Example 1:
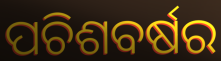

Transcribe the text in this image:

ପଚିଶବର୍ଷର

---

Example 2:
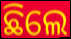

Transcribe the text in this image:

ଛିଲେ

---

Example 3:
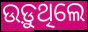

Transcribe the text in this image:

ଉଡ଼ୁଥିଲେ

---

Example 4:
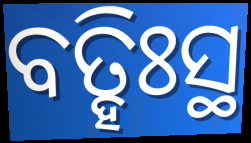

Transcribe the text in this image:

ବତ୍ହିଃସ୍ଥ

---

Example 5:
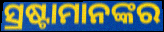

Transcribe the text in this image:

ସ୍ରଷ୍ଟାମାନଙ୍କର